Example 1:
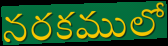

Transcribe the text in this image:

నరకములో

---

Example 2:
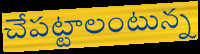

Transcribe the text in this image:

చేపట్టాలంటున్న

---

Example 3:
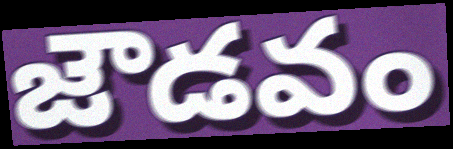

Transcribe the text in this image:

జౌడవం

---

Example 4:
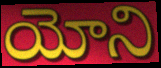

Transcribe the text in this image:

యోని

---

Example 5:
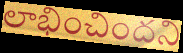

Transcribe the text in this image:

లాభించిందని